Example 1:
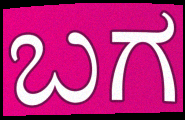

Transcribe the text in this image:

ಬಗ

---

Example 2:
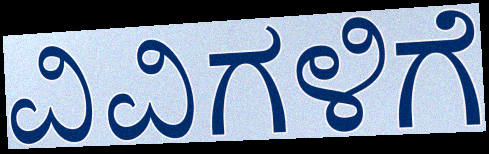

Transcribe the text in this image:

ವಿವಿಗಳಿಗೆ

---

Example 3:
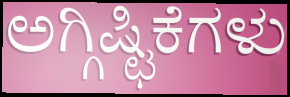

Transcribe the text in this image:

ಅಗ್ಗಿಷ್ಟಿಕೆಗಳು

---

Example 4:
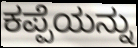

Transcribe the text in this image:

ಕಪ್ಪೆಯನ್ನು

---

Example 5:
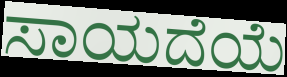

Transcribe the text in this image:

ಸಾಯದೆಯೆ